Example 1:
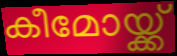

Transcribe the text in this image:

കീമോയ്ക്ക്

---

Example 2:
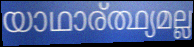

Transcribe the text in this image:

യാഥാര്ത്ഥ്യമല്ല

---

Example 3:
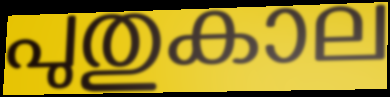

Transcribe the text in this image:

പുതുകാല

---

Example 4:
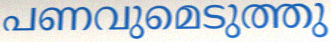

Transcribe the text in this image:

പണവുമെടുത്തു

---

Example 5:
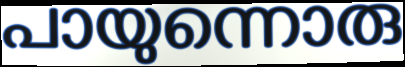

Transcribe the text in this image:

പായുന്നൊരു